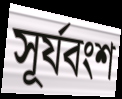
সূর্যবংশ